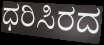
ಧರಿಸಿರದ